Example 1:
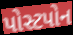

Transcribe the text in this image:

પોસ્ટપોન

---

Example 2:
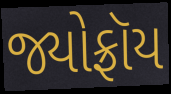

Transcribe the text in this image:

જ્યોફ્રૉય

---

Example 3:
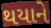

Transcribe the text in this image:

થયાને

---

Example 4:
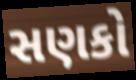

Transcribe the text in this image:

સણકો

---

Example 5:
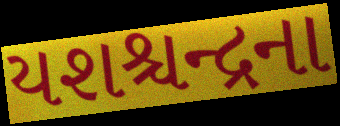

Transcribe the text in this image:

યશશ્ચન્દ્રના